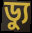
ড্যু